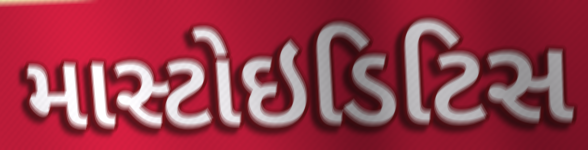
માસ્ટોઇડિટિસ